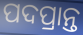
ପଦପ୍ରାନ୍ତ